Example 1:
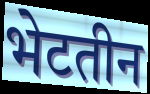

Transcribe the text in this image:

भेटतीन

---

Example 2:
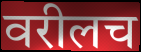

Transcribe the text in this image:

वरीलच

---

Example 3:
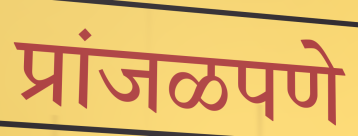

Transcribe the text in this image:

प्रांजळपणे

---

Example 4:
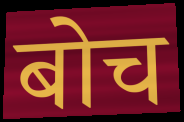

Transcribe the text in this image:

बोच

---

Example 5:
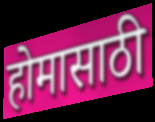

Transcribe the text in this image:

होमासाठी